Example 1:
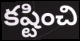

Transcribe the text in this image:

కష్టించి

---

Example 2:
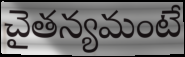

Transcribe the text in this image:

చైతన్యమంటే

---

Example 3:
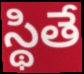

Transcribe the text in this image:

స్థితే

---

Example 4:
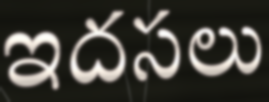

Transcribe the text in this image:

ఇదసలు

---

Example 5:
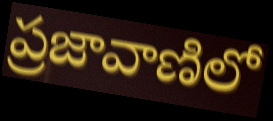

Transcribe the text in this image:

ప్రజావాణిలో